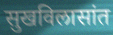
सुखविलासांत